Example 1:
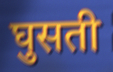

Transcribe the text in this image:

घुसती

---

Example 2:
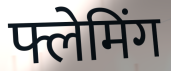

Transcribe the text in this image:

फ्लेमिंग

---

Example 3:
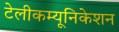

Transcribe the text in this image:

टेलीकम्‍यूनिकेशन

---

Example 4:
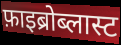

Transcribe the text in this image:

फ़ाइब्रोब्लास्ट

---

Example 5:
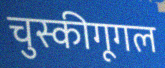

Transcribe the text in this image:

चुस्कीगूगल